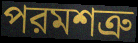
পরমশত্রু